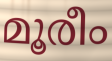
മൂരീം